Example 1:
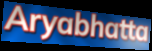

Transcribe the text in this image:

Aryabhatta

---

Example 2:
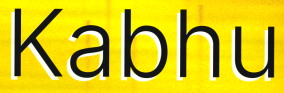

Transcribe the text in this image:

Kabhu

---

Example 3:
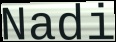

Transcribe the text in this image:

Nadi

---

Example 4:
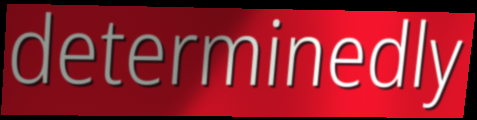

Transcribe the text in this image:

determinedly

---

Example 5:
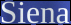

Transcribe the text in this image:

Siena